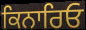
ਕਿਨਾਰਿਓ